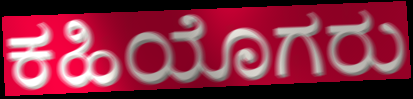
ಕಹಿಯೊಗರು